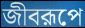
জীবরূপে